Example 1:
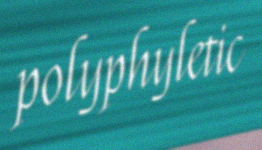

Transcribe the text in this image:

polyphyletic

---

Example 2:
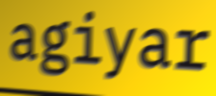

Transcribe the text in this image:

agiyar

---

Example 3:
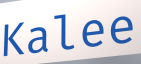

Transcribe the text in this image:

Kalee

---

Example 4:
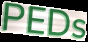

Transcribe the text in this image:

PEDs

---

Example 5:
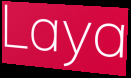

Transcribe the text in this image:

Laya